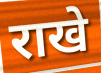
राखे